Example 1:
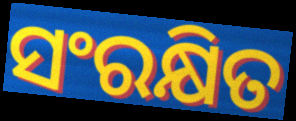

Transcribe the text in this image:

ସଂରକ୍ଷିତ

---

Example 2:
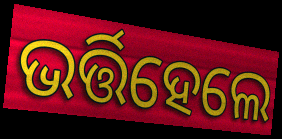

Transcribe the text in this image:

ଭର୍ତ୍ତିହେଲେ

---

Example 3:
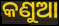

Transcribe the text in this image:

କଣୁଆ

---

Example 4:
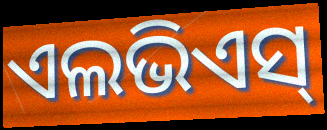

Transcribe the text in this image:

ଏଲଭିଏସ୍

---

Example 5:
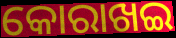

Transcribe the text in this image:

କୋରାଖଇ